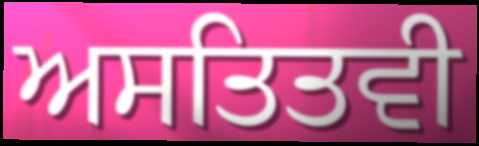
ਅਸਤਿਤਵੀ